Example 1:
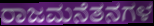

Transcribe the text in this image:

ರಾಜಮನೆತನಗಳ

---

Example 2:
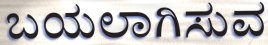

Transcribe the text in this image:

ಬಯಲಾಗಿಸುವ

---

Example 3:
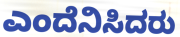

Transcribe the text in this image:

ಎಂದೆನಿಸಿದರು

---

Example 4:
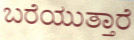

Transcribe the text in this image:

ಬರೆಯುತ್ತಾರೆ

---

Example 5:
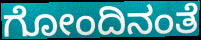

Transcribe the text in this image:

ಗೋಂದಿನಂತೆ